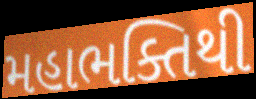
મહાભક્તિથી